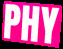
PHY